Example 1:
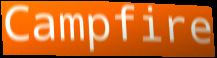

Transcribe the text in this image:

Campfire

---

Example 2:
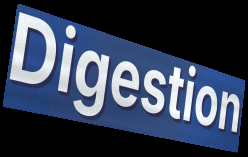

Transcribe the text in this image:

Digestion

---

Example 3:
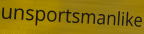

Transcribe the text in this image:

unsportsmanlike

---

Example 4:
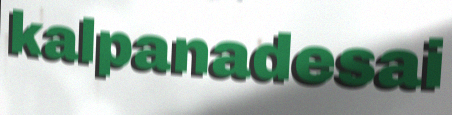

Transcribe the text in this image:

kalpanadesai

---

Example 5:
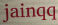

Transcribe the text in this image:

jainqq